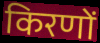
किरणों